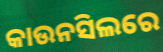
କାଉନସିଲରେ